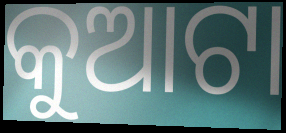
କୁଆଟା